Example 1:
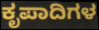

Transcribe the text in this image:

ಕೃಪಾದಿಗಳ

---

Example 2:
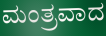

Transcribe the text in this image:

ಮಂತ್ರವಾದ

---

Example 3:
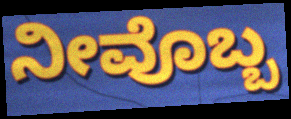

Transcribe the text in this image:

ನೀವೊಬ್ಬ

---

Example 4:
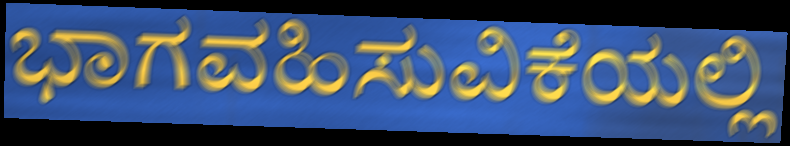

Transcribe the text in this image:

ಭಾಗವಹಿಸುವಿಕೆಯಲ್ಲಿ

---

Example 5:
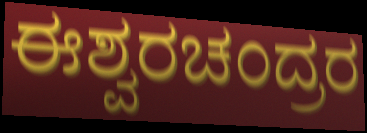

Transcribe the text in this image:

ಈಶ್ವರಚಂದ್ರರ